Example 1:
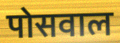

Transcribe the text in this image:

पोसवाल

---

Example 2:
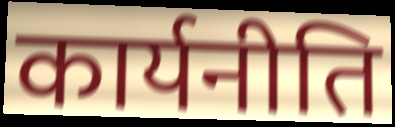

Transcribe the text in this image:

कार्यनीति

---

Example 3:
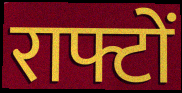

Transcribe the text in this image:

राफ्टों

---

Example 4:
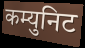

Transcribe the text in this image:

कम्युनिट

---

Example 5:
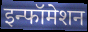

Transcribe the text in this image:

इन्फॉमेशन